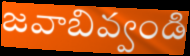
జవాబివ్వండి